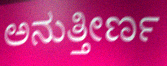
ಅನುತ್ತೀರ್ಣ